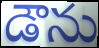
డౌను